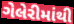
ગેલેરીમાંથી